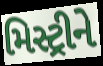
મિસ્ટ્રીને